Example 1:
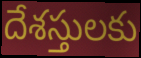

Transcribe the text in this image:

దేశస్తులకు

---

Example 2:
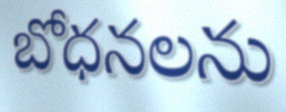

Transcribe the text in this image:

బోధనలను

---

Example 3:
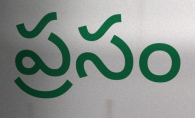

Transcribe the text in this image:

ప్రసం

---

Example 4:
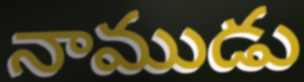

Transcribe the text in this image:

నాముడు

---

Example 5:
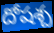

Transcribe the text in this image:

దోషశ్చ